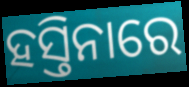
ହସ୍ତିନାରେ